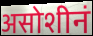
असोशीनं